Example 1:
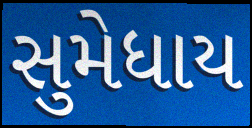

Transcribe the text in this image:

સુમેધાય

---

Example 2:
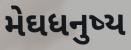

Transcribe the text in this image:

મેઘધનુષ્ય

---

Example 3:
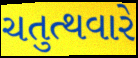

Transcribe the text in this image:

ચતુત્થવારે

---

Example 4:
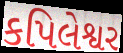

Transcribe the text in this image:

કપિલેશ્વર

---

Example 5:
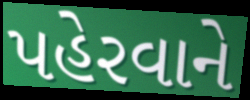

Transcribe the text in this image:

પહેરવાને